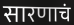
सारणाचं